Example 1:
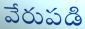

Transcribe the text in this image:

వేరుపడి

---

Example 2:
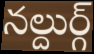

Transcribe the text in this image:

నల్దుర్గ్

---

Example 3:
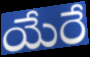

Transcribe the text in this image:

యేరే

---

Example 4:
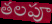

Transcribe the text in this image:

తలపూ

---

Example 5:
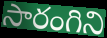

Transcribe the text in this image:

సారంగిని